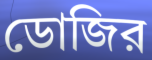
ডোজির